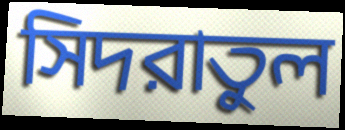
সিদরাতুল